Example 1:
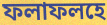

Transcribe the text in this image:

ফলাফলহে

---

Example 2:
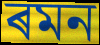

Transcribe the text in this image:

ৰমন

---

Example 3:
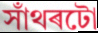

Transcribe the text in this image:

সাঁথৰটো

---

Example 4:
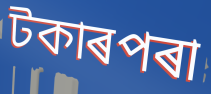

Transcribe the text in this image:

টকাৰপৰা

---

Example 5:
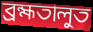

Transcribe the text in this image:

ব্ৰহ্মতালুত